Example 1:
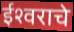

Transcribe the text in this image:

ईश्वराचे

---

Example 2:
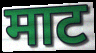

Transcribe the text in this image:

माट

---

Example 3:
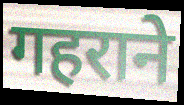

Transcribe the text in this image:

गहराने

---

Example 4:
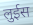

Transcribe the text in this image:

लुईस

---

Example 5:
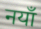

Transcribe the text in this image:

नयाँ